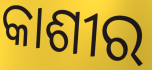
କାଶୀର